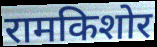
रामकिशोर